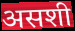
असशी